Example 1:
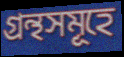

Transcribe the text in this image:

গ্রন্থসমূহে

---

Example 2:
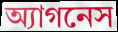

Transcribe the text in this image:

অ্যাগনেস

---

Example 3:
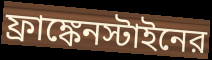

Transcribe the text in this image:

ফ্রাঙ্কেনস্টাইনের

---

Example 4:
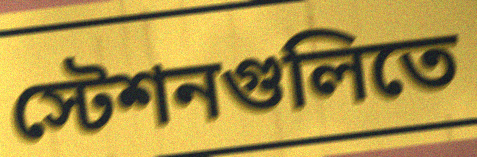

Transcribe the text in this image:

স্টেশনগুলিতে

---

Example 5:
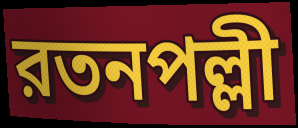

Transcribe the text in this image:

রতনপল্লী